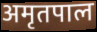
अमृतपाल